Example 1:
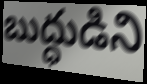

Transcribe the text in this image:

బుద్ధుడిని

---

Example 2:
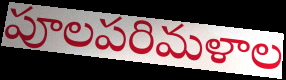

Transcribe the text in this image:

పూలపరిమళాల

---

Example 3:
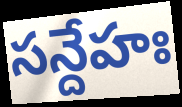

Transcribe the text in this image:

సన్దేహః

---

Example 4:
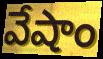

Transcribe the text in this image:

వేషాం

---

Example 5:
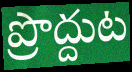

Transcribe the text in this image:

ప్రొద్దుట